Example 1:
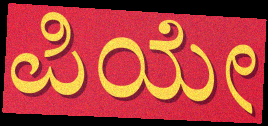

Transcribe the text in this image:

ಪಿಯೇ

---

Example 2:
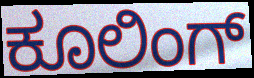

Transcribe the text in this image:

ಕೂಲಿಂಗ್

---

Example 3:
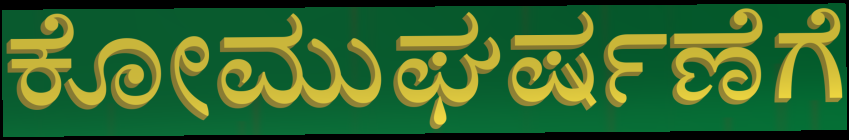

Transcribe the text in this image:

ಕೋಮುಘರ್ಷಣೆಗೆ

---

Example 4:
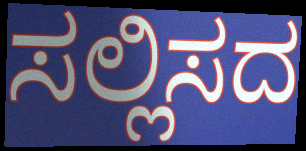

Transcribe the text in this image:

ಸಲ್ಲಿಸದ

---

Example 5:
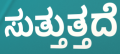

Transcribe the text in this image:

ಸುತ್ತುತ್ತದೆ